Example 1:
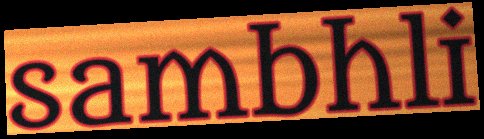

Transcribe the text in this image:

sambhli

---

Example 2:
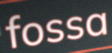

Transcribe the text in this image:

fossa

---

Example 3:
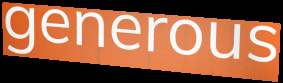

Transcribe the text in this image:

generous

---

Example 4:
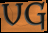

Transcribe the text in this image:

UG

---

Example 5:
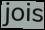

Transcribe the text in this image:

jois